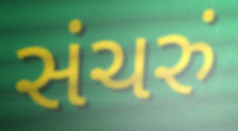
સંચરું